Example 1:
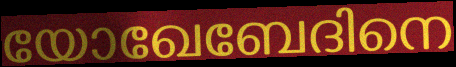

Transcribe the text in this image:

യോഖേബേദിനെ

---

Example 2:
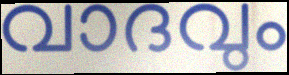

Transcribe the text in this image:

വാദവും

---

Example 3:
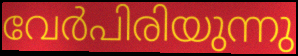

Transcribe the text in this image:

വേർപിരിയുന്നു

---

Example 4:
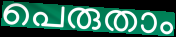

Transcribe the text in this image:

പെരുതാം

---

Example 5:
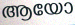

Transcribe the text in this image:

ആയോ